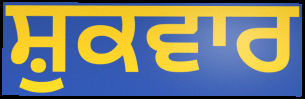
ਸ਼ੁਕਵਾਰ